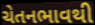
ચેતનભાવથી